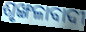
ଶୃଙ୍ଖଳାବାଦୀ